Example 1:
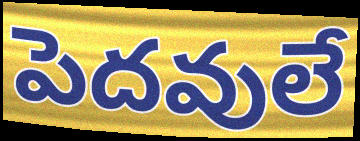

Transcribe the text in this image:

పెదవులే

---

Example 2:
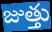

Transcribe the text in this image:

జుత్తు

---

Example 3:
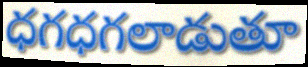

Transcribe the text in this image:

ధగధగలాడుతూ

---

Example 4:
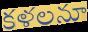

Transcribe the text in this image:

కళలనూ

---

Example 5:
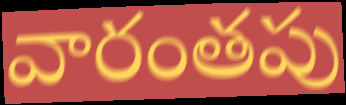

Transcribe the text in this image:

వారంతపు